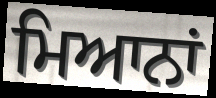
ਮਿਆਨਾਂ